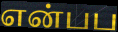
என்பப